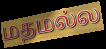
மதமல்ல